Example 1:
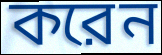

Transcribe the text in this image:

করেন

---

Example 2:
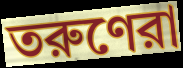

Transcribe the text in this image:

তরুণেরা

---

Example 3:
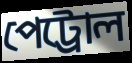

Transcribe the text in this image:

পেট্রোল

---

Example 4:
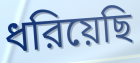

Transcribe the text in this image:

ধরিয়েছি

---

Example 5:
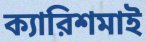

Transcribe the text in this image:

ক্যারিশমাই